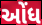
ઓંધ